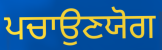
ਪਚਾਉਣਯੋਗ